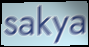
sakya